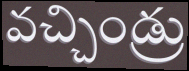
వచ్చిండ్రు